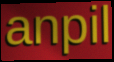
anpil